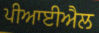
ਪੀਆਈਐਲ